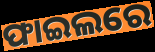
ଫାଇଲରେ